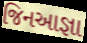
જિનઆજ્ઞા